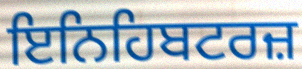
ਇਨਿਹਿਬਟਰਜ਼